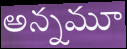
అన్నమూ